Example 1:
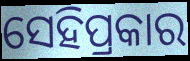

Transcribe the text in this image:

ସେହିପ୍ରକାର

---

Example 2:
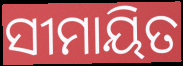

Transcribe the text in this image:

ସୀମାୟିତ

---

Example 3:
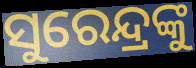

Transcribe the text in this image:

ସୁରେନ୍ଦ୍ରଙ୍କୁ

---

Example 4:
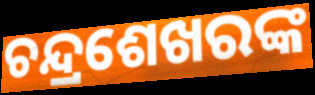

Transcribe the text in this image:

ଚନ୍ଦ୍ରଶେଖରଙ୍କ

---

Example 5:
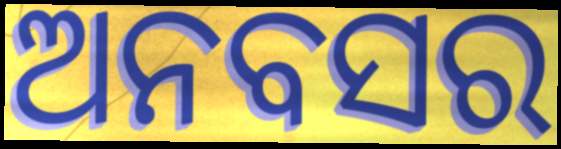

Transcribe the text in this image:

ଅନବସର